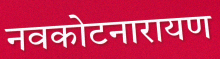
नवकोटनारायण